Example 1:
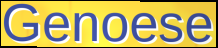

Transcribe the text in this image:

Genoese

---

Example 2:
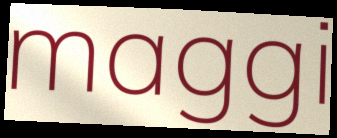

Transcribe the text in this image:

maggi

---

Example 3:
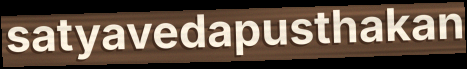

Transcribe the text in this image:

satyavedapusthakan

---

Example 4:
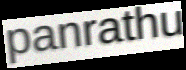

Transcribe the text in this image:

panrathu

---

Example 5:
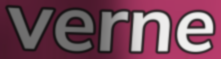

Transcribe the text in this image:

verne